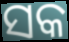
ସକ